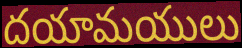
దయామయులు